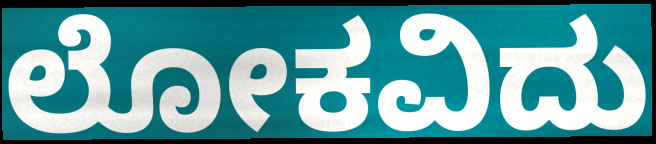
ಲೋಕವಿದು